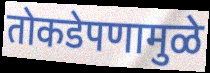
तोकडेपणामुळे